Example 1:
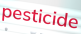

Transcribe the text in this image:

pesticide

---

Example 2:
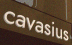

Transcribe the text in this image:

cavasius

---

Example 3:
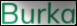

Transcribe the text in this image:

Burka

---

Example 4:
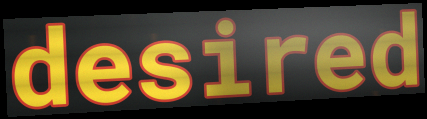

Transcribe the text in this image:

desired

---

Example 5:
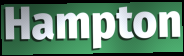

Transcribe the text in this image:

Hampton